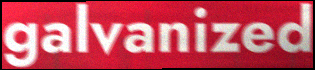
galvanized